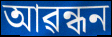
আৱন্ধন